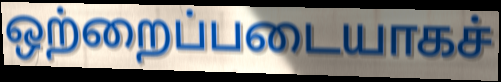
ஒற்றைப்படையாகச்